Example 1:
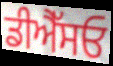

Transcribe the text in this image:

ਡੀਐੱਸਓ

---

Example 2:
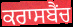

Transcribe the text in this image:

ਕਰਾਸਬੈਂਚ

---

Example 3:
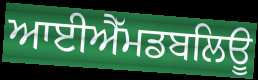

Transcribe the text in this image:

ਆਈਐੱਮਡਬਲਿਊ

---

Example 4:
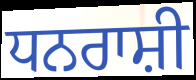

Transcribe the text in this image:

ਧਨਰਾਸ਼ੀ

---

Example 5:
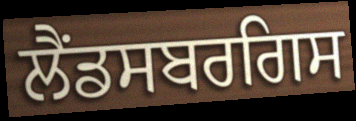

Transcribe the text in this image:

ਲੈਂਡਸਬਰਗਿਸ